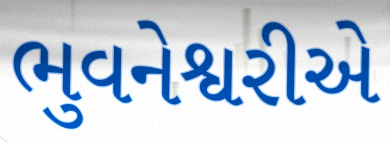
ભુવનેશ્વરીએ